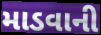
માડવાની